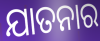
ଯାତନାର